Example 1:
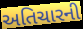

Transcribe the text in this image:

અતિચારની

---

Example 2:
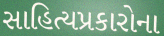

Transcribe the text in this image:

સાહિત્યપ્રકારોના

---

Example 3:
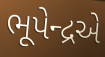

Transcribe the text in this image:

ભૂપેન્દ્રએ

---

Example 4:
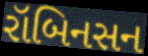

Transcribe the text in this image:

રૉબિનસન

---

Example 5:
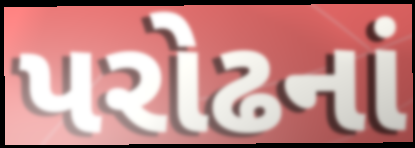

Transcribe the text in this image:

પરોઢનાં